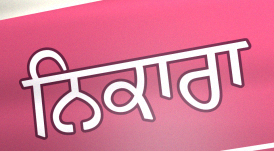
ਨਿਕਾਰਾ